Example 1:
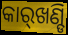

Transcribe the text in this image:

କାର୍‌ଖଣ୍ଡି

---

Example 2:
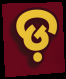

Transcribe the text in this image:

ଡ଼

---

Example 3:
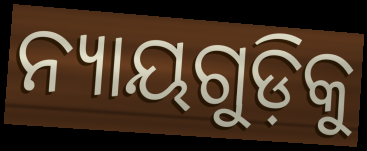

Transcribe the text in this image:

ନ୍ୟାୟଗୁଡ଼ିକୁ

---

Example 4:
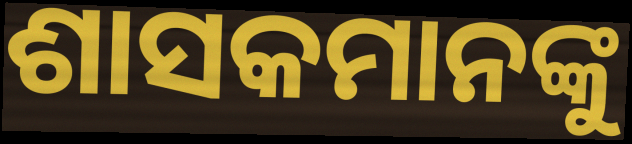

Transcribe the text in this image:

ଶାସକମାନଙ୍କୁ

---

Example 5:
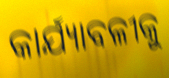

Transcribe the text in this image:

କାର୍ଯ୍ୟାବଳୀକୁ